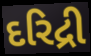
દરિદ્રી